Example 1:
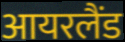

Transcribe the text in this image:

आयरलैंड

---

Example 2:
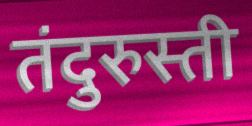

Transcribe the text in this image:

तंदुरुस्ती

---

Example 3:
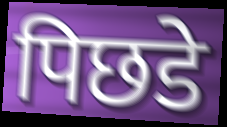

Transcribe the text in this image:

पिछडे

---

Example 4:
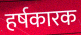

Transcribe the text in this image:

हर्षकारक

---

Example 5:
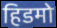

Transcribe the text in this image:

हिडमो